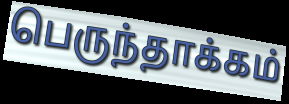
பெருந்தாக்கம்